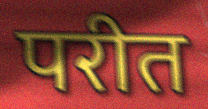
परीत